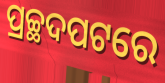
ପ୍ରଚ୍ଛଦପଟରେ